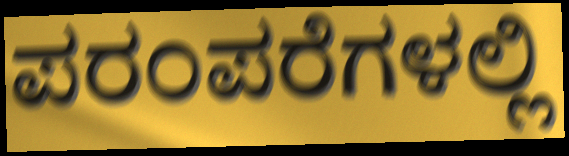
ಪರಂಪರೆಗಳಲ್ಲಿ